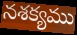
నశక్యము